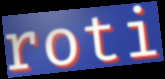
roti